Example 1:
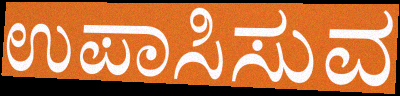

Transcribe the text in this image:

ಉಪಾಸಿಸುವ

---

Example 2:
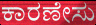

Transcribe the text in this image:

ಕಾರಣೇಸು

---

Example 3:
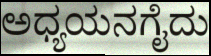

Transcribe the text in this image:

ಅಧ್ಯಯನಗೈದು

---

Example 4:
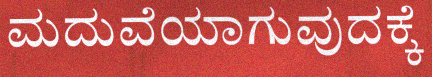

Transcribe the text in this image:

ಮದುವೆಯಾಗುವುದಕ್ಕೆ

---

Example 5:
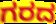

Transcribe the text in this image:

ಗರದ